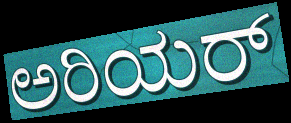
ಅರಿಯರ್